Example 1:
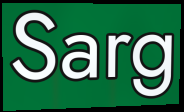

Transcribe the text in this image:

Sarg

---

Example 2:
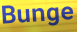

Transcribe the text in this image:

Bunge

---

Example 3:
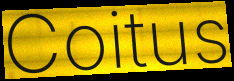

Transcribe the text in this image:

Coitus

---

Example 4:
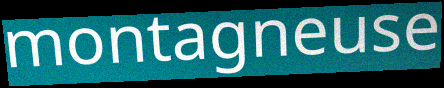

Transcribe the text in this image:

montagneuse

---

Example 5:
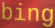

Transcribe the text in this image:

bing